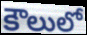
కౌలులో